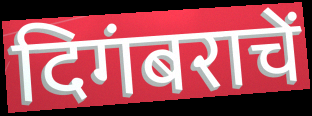
दिगंबराचें